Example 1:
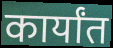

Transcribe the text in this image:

कार्यांत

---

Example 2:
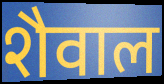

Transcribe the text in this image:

शैवाल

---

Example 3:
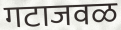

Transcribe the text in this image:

गटाजवळ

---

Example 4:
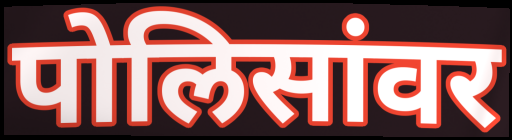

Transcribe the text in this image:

पोलिसांवर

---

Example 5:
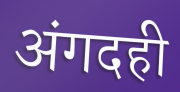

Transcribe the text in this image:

अंगदही